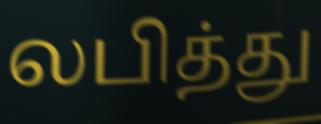
லபித்து